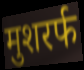
मुशरर्फ